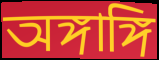
অঙ্গাঙ্গি